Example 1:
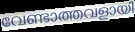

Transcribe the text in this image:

വേണ്ടാത്തവളായി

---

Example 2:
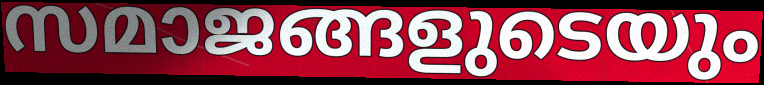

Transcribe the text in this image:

സമാജങ്ങളുടെയും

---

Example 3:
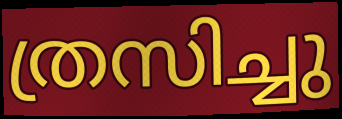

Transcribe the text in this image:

ത്രസിച്ചു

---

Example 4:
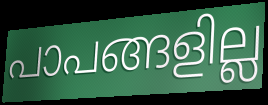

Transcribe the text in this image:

പാപങ്ങളില്ല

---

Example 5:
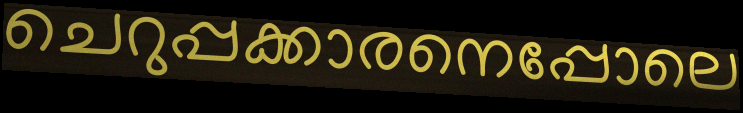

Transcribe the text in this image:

ചെറുപ്പക്കാരനെപ്പോലെ